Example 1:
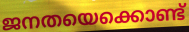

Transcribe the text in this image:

ജനതയെക്കൊണ്ട്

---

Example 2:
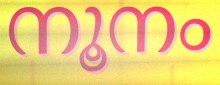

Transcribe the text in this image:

നൂനം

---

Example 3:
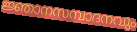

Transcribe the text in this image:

ജ്ഞാനസമ്പാദനവും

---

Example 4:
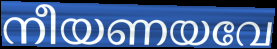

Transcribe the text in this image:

നീയണയവേ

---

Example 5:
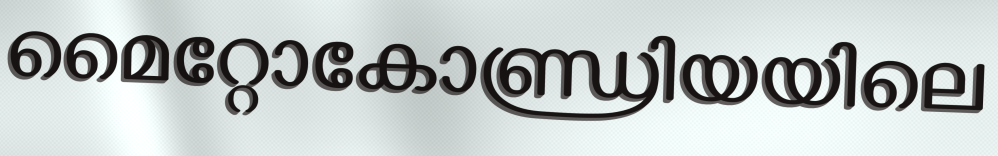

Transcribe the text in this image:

മൈറ്റോകോണ്ഡ്രിയയിലെ